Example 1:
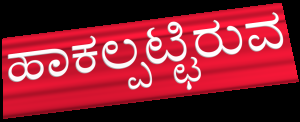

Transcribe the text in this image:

ಹಾಕಲ್ಪಟ್ಟಿರುವ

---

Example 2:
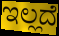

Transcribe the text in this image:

ಇಲ್ಲದೆ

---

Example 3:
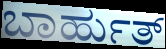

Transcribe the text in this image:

ಬಾರ್ಹುತ್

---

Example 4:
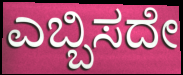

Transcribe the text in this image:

ಎಬ್ಬಿಸದೇ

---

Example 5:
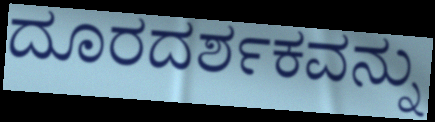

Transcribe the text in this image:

ದೂರದರ್ಶಕವನ್ನು